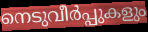
നെടുവീർപ്പുകളും